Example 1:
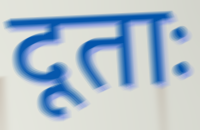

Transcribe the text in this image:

दूताः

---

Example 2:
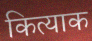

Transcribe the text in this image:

कित्याक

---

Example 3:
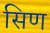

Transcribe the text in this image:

सिण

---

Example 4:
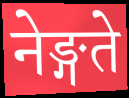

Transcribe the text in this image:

नेङ्गते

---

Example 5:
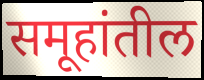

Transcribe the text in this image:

समूहांतील